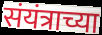
संयंत्राच्या